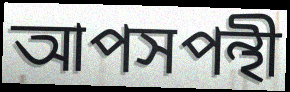
আপসপন্থী